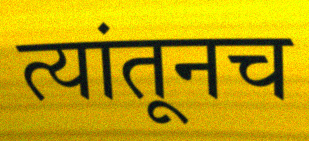
त्यांतूनच